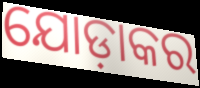
ଯୋଡ଼ାକର